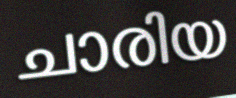
ചാരിയ